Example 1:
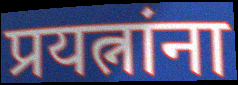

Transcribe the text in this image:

प्रयत्नांना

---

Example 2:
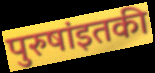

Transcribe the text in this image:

पुरुषांइतकी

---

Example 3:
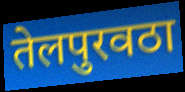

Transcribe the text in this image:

तेलपुरवठा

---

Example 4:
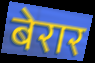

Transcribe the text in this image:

बेरार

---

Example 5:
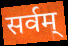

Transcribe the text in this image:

सर्वम्